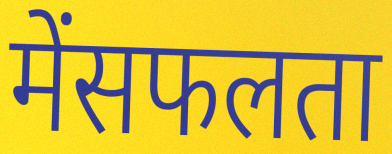
मेंसफलता